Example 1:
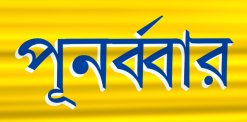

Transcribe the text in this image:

পূনর্ব্বার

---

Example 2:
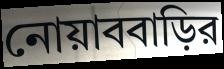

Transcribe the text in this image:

নোয়াববাড়ির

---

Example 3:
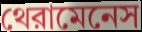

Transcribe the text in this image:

থেরামেনেস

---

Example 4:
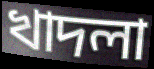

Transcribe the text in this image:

খাদলা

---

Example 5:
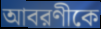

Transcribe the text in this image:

আবরণীকে